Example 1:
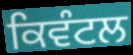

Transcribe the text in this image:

ਕਿਵੰਟਲ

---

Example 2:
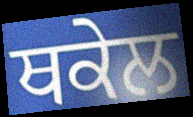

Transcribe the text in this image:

ਥਕੇਲ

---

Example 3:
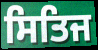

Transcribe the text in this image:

ਸਿਤਿਜ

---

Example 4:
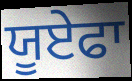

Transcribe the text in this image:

ਯੂਏਫਾ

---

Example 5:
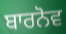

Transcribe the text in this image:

ਬਾਰਨੋਵ